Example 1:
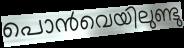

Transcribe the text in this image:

പൊൻവെയിലുണ്ടു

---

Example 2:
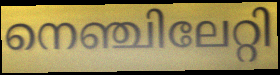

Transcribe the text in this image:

നെഞ്ചിലേറ്റി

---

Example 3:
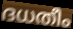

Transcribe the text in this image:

ദധതീം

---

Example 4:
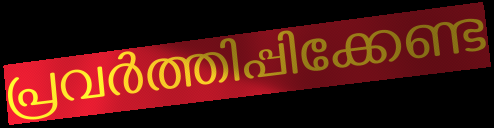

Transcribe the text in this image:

പ്രവർത്തിപ്പിക്കേണ്ട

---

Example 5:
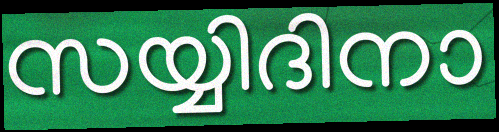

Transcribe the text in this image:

സയ്യിദിനാ